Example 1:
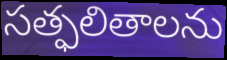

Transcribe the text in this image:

సత్ఫలితాలను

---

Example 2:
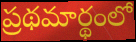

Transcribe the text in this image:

ప్రథమార్థంలో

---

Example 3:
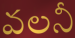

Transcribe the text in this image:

వలనీ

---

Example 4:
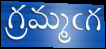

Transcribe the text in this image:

గ్రమ్మఁగ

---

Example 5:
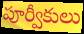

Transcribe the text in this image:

పూర్వీకులు